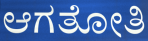
ಆಗತೋತಿ